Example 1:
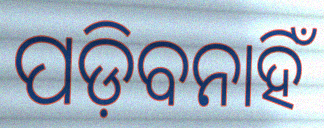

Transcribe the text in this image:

ପଡ଼ିବନାହିଁ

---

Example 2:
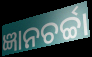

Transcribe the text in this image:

ଜ୍ଞାନଚର୍ଚ୍ଚା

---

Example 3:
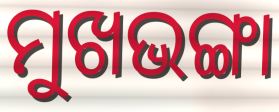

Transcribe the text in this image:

ମୁଖଭଙ୍ଗା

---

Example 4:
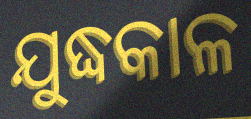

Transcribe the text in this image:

ଯୁଦ୍ଧକାଳ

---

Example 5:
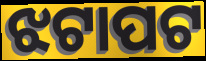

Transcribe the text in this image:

ଝଟାପଟ